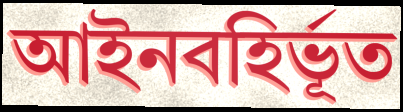
আইনবহির্ভূত